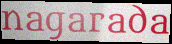
nagarada